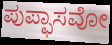
ಪುಪ್ಫಾಸವೋ